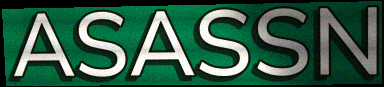
ASASSN